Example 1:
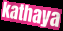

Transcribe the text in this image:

kathaya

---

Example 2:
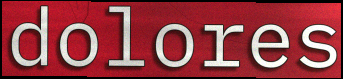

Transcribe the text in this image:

dolores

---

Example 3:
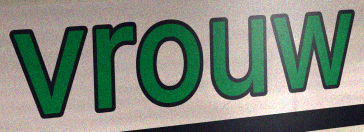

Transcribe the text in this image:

vrouw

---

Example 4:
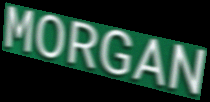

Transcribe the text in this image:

MORGAN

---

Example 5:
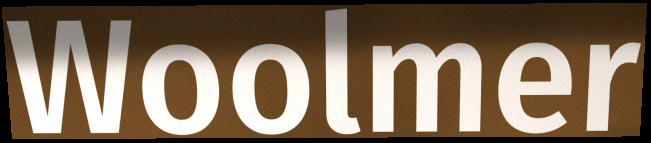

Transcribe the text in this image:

Woolmer